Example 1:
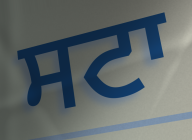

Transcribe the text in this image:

ਸਟਾ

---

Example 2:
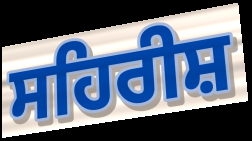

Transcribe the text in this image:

ਸਹਿਰੀਸ਼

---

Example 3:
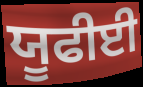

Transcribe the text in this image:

ਯੂਫੀਈ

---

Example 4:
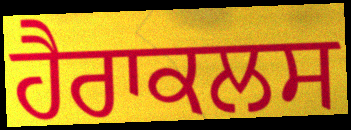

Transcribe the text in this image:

ਹੈਰਾਕਲਸ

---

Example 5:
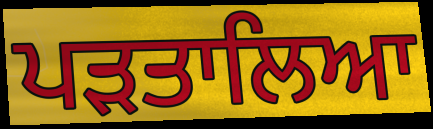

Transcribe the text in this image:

ਪੜਤਾਲਿਆ